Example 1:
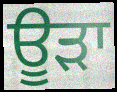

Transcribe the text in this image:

ਊੜਾ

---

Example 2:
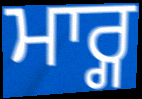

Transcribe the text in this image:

ਮਾਰ੍ਗ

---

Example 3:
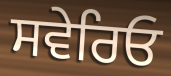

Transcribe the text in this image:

ਸਵੇਰਿਓ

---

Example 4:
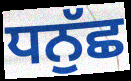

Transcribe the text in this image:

ਧਨੁੱਛ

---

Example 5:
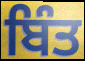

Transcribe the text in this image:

ਬਿੰਤ